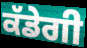
ਕੱਡੇਗੀ